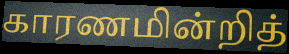
காரணமின்றித்